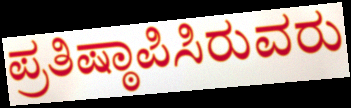
ಪ್ರತಿಷ್ಠಾಪಿಸಿರುವರು